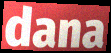
dana